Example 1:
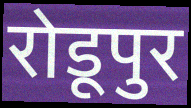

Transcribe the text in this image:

रोडूपुर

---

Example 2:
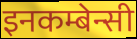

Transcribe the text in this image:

इनकम्बेन्सी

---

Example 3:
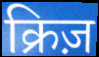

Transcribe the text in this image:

क्रिज़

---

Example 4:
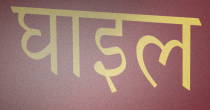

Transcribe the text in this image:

घाइल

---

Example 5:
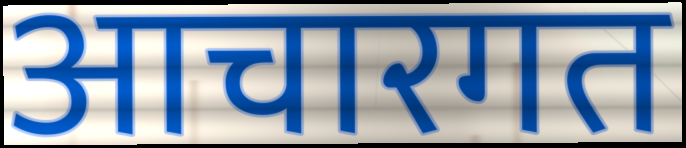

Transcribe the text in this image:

आचारगत